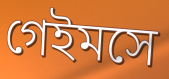
গেইমসে